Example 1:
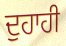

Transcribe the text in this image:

ਦੁਹਾਹੀ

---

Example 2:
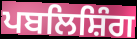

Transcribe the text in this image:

ਪਬਲਿਸ਼ਿੰਗ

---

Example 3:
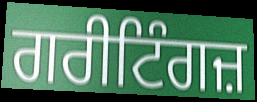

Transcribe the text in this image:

ਗਰੀਟਿੰਗਜ਼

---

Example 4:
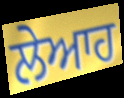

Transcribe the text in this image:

ਲੇਆਹ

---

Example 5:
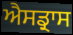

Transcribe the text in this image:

ਐਸਡ੍ਰਾਸ